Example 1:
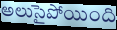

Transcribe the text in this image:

అలుసైపోయింది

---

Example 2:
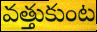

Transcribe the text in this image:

వత్తుకుంట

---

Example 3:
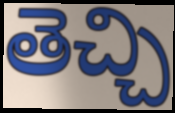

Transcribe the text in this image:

తెచ్చి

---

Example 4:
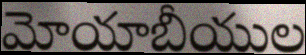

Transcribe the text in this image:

మోయాబీయుల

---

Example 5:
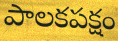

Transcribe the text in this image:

పాలకపక్షం